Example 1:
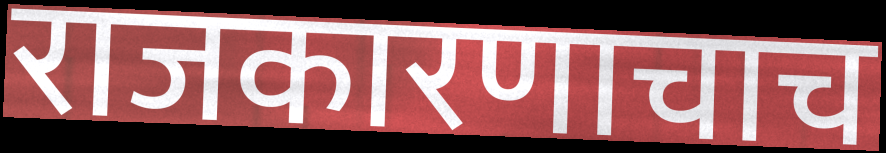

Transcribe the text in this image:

राजकारणाचाच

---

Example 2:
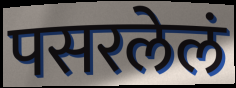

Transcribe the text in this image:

पसरलेलं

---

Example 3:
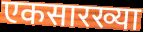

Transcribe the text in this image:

एकसारख्या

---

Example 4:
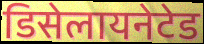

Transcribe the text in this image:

डिसेलायनेटेड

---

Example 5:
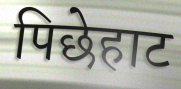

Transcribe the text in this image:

पिछेहाट